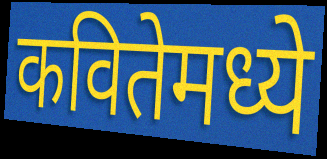
कवितेमध्ये